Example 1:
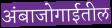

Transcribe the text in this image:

अंबाजोगाईतील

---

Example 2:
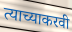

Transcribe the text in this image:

त्याच्याकरवी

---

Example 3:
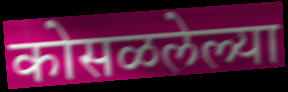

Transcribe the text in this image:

कोसळलेल्या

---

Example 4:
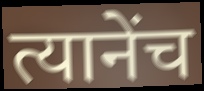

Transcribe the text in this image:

त्यानेंच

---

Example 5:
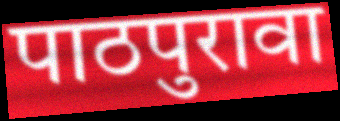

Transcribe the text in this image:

पाठपुरावा